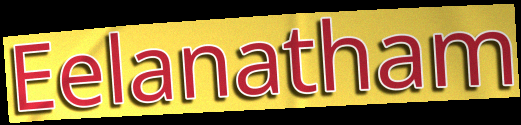
Eelanatham